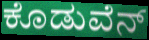
ಕೊಡುವೆನ್